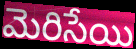
మెరిసేయి